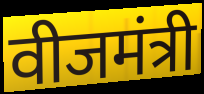
वीजमंत्री